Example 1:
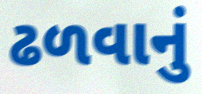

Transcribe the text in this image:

ઢળવાનું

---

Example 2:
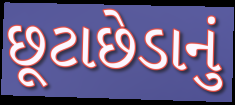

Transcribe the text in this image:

છૂટાછેડાનું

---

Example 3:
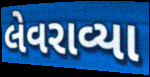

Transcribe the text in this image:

લેવરાવ્યા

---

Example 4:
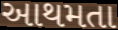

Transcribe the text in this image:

આથમતા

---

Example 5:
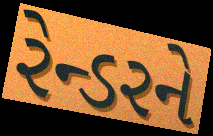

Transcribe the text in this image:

રેન્ડરને